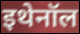
इथेनॉल